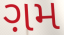
ગ઼મ